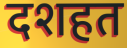
दशहत